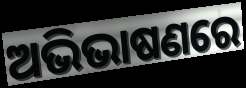
ଅଭିଭାଷଣରେ